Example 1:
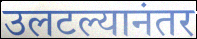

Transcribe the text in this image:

उलटल्यानंतर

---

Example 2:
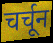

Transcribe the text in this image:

चर्चून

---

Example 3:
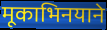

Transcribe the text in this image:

मूकाभिनयाने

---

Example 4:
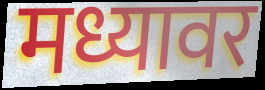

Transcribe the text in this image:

मध्यावर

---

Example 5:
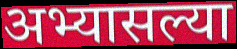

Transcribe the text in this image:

अभ्यासल्या